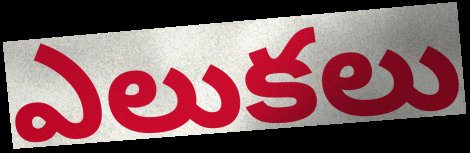
ఎలుకలు